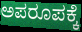
ಅಪರೂಪಕ್ಕೆ